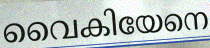
വൈകിയേനെ